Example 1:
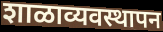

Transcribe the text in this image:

शाळाव्यवस्थापन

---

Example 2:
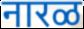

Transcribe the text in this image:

नारळ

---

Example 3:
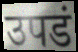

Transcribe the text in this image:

उपडं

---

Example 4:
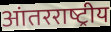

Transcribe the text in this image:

आंतरराष्ट्रीय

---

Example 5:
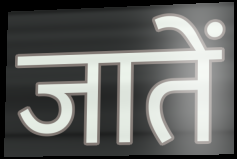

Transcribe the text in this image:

जातें